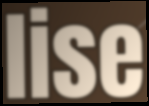
lise